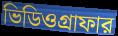
ভিডিওগ্রাফার